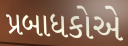
પ્રબાધકોએ